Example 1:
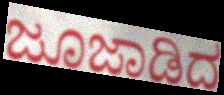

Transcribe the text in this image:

ಜೂಜಾಡಿದ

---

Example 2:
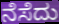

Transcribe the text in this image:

ನೆಸೆದು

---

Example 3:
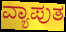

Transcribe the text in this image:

ವ್ಯಾಪುತ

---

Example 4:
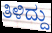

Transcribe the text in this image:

ತಿಳಿದ್ದು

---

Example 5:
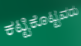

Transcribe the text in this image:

ಕಟ್ಟಿಕೊಟ್ಟವರು